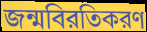
জন্মবিরতিকরণ